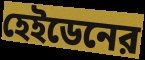
হেইডেনের